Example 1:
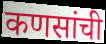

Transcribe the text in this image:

कणसांची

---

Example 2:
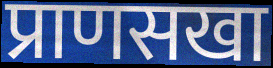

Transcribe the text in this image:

प्राणसखा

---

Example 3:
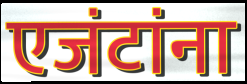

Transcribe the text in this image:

एजंटांना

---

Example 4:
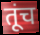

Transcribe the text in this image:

तूंच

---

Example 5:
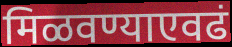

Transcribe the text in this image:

मिळवण्याएवढं